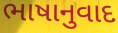
ભાષાનુવાદ